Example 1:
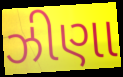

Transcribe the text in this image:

ઝીણા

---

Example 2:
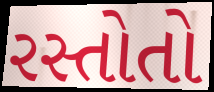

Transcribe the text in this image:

રસ્તોતો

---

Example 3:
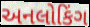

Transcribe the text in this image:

અનલોકિંગ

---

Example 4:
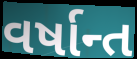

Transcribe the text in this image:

વર્ષાન્ત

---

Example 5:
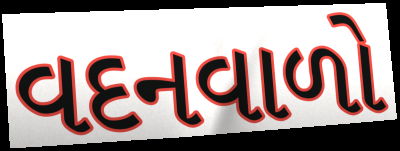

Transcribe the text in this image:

વદનવાળો